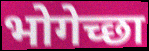
भोगेच्छा